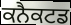
ਕਨੈਕਟਡ